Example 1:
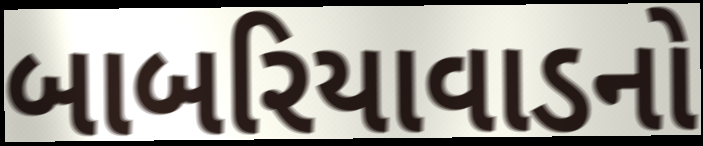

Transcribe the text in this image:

બાબરિયાવાડનો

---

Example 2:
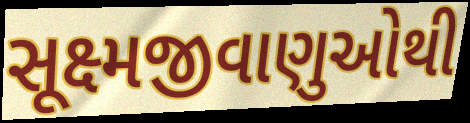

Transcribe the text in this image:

સૂક્ષ્મજીવાણુઓથી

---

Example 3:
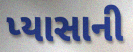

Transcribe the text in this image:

પ્યાસાની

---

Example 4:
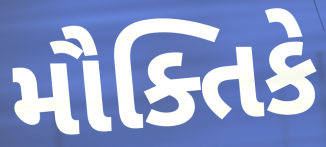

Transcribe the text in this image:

મૌક્તિકે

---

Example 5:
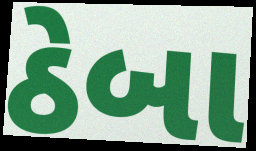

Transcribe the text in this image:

ઠેબા